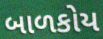
બાળકોય